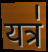
यत्र॑